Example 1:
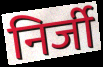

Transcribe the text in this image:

निर्जी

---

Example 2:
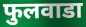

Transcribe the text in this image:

फुलवाडा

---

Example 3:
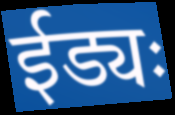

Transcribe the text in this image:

ईड्यः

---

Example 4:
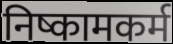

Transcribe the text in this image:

निष्कामकर्म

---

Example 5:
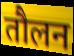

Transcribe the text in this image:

तौलन